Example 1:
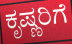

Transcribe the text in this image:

ಕೃಷ್ಣರಿಗೆ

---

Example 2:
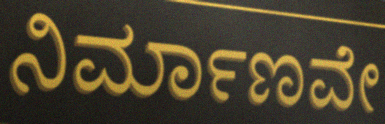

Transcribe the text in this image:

ನಿರ್ಮಾಣವೇ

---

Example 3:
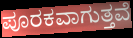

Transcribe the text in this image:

ಪೂರಕವಾಗುತ್ತವೆ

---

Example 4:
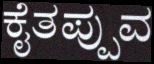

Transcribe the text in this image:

ಕೈತಪ್ಪುವ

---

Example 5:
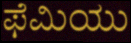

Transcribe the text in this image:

ಫೆಮಿಯು